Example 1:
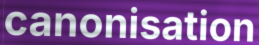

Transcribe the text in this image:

canonisation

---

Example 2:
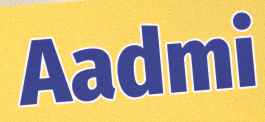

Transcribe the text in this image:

Aadmi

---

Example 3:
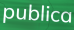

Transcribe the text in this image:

publica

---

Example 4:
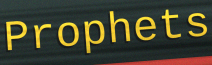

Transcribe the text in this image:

Prophets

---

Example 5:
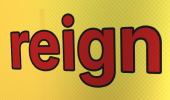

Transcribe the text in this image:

reign